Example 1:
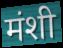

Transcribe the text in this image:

मंशी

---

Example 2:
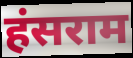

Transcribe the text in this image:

हंसराम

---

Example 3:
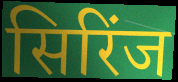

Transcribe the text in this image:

सिरिंज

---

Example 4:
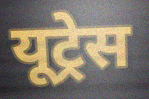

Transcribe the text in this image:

यूट्रेस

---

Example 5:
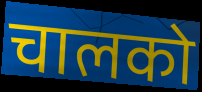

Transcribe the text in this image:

चालको